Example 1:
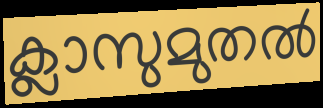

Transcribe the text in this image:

ക്ലാസുമുതൽ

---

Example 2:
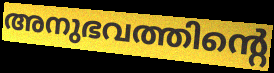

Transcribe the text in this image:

അനുഭവത്തിന്റെ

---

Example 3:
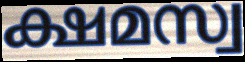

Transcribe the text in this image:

ക്ഷമസ്വ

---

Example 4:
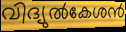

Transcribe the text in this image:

വിദ്യുൽകേശൻ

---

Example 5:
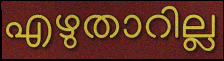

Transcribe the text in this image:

എഴുതാറില്ല